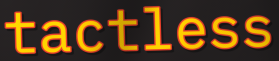
tactless